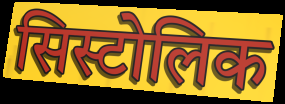
सिस्टोलिक